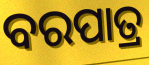
ବରପାତ୍ର